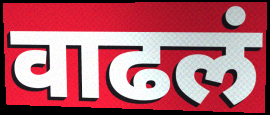
वाढलं